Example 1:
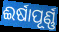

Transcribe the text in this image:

ଈର୍ଷାପୂର୍ଣ୍ଣ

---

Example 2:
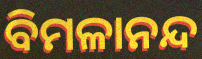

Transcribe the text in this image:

ବିମଳାନନ୍ଦ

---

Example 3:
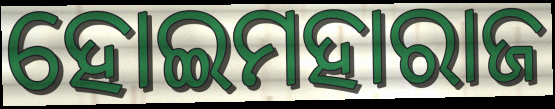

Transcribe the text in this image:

ହୋଇମହାରାଜ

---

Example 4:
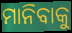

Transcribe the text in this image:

ମାନିବାକୁ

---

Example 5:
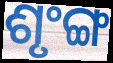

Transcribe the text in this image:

ଶୃଂଙ୍ଗ